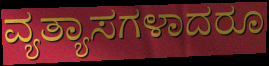
ವ್ಯತ್ಯಾಸಗಳಾದರೂ